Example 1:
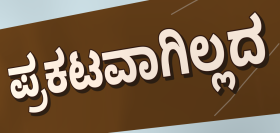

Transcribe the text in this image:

ಪ್ರಕಟವಾಗಿಲ್ಲದ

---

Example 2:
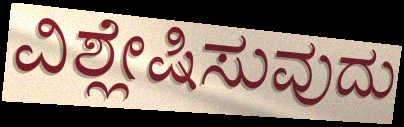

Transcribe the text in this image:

ವಿಶ್ಲೇಷಿಸುವುದು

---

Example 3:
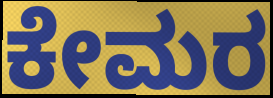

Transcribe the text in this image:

ಕೇಮರ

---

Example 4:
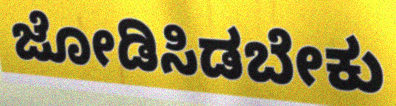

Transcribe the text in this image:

ಜೋಡಿಸಿಡಬೇಕು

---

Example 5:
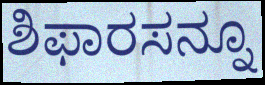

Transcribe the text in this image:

ಶಿಫಾರಸನ್ನೂ